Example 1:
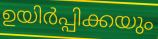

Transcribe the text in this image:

ഉയിർപ്പിക്കയും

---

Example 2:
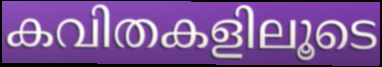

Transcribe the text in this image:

കവിതകളിലൂടെ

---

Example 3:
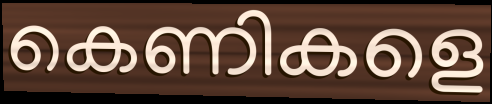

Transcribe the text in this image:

കെണികളെ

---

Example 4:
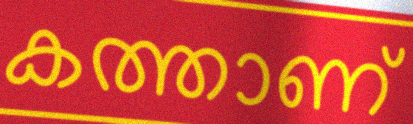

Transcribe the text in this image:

കത്താണ്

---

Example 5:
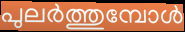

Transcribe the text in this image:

പുലർത്തുമ്പോൾ